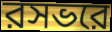
রসভরে